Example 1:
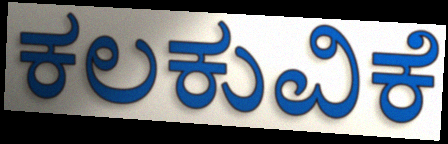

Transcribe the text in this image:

ಕಲಕುವಿಕೆ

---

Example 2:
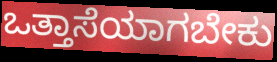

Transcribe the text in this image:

ಒತ್ತಾಸೆಯಾಗಬೇಕು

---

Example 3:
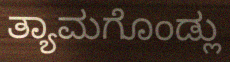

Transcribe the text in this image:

ತ್ಯಾಮಗೊಂಡ್ಲು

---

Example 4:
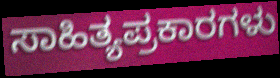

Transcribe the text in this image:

ಸಾಹಿತ್ಯಪ್ರಕಾರಗಳು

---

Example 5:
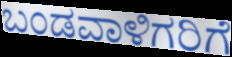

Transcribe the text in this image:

ಬಂಡವಾಳಿಗರಿಗೆ